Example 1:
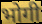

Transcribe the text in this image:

भोगी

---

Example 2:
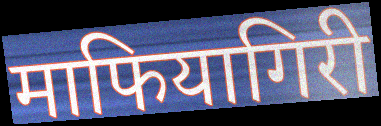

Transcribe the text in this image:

माफियागिरी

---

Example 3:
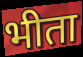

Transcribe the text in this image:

भीता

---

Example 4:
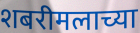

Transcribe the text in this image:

शबरीमलाच्या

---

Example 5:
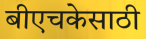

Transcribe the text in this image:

बीएचकेसाठी